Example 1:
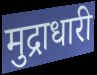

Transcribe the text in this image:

मुद्राधारी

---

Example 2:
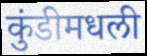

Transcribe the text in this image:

कुंडीमधली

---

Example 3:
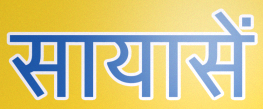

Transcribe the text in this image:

सायासें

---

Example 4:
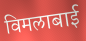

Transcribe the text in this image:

विमलाबाई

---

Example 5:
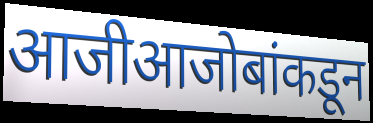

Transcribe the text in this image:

आजीआजोबांकडून